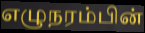
எழுநரம்பின்